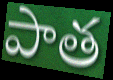
పాత